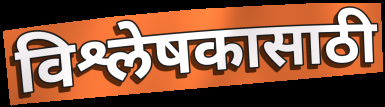
विश्लेषकासाठी